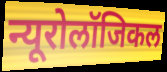
न्यूरोलॉजिकल